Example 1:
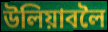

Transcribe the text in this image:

উলিয়াবলৈ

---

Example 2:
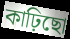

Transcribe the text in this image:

কাঢ়িছো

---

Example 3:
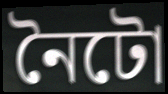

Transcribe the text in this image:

নৈটো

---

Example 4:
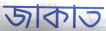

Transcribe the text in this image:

জাকাত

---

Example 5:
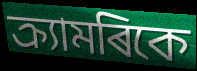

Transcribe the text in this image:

ক্ৰ্যামৰিকে